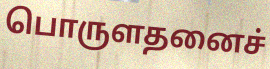
பொருளதனைச்